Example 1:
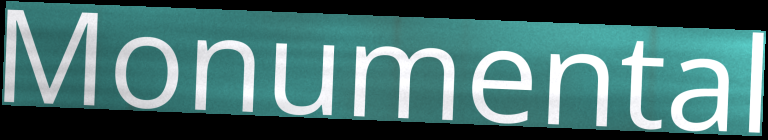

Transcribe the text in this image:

Monumental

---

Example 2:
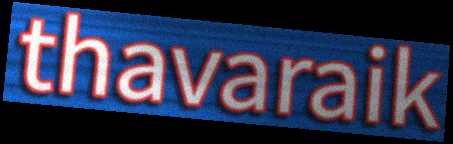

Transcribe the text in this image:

thavaraik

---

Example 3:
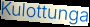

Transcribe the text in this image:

Kulottunga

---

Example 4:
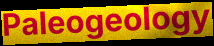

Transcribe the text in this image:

Paleogeology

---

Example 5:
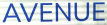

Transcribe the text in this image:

AVENUE